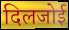
दिलजोई